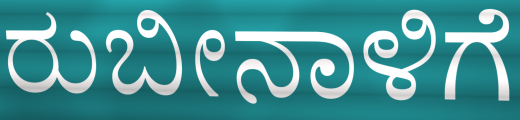
ರುಬೀನಾಳಿಗೆ